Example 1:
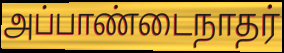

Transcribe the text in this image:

அப்பாண்டைநாதர்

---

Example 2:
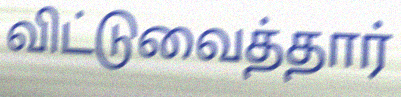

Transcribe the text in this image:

விட்டுவைத்தார்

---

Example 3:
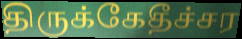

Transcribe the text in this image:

திருக்கேதீச்சர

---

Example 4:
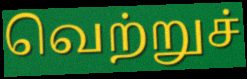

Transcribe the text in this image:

வெற்றுச்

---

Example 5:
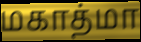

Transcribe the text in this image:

மகாத்மா